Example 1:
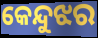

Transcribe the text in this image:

କେନ୍ଦୁଝର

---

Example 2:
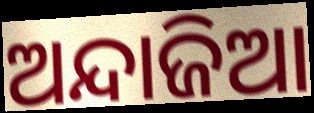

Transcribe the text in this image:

ଅନ୍ଦାଜିଆ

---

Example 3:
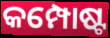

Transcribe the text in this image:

କମ୍ପୋଷ୍ଟ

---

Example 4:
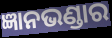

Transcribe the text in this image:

ଜ୍ଞାନଭଣ୍ଡାର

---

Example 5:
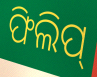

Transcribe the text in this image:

ଫିଲିପ୍